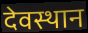
देवस्थान